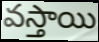
వస్తాయి